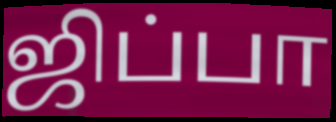
ஜிப்பா